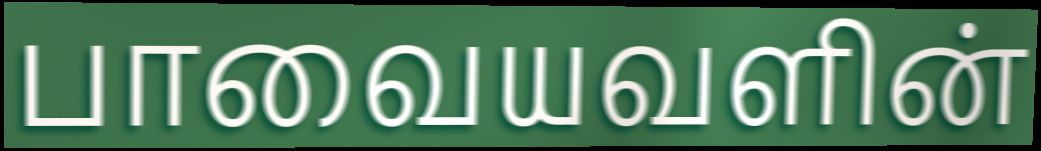
பாவையவளின்